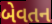
બેવતન